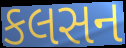
કલસન